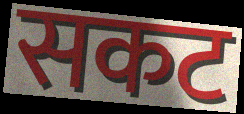
सकट